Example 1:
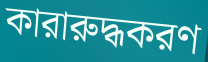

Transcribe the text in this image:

কারারুদ্ধকরণ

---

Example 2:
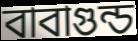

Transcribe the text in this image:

বাবাগুন্ড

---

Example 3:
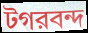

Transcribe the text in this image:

টগরবন্দ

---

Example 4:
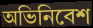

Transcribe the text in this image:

অভিনিবেশ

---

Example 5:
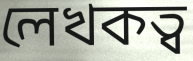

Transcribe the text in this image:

লেখকত্ব